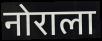
नोराला